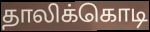
தாலிக்கொடி